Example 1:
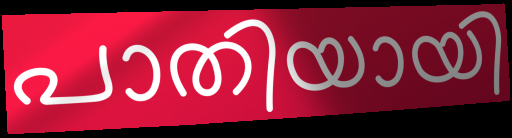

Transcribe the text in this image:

പാതിയായി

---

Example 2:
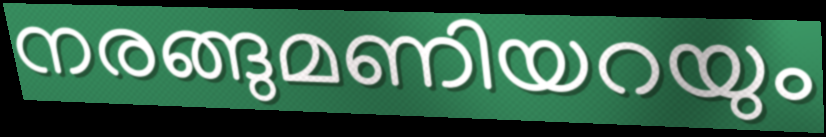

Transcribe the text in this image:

നരങ്ങുമണിയറയും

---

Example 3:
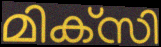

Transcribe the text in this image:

മിക്‌സി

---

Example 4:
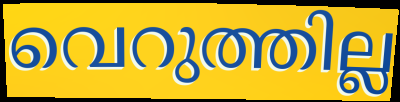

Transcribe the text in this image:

വെറുത്തില്ല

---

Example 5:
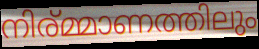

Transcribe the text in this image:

നിര്മ്മാണത്തിലും